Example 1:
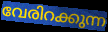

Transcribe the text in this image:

വേരിറക്കുന്ന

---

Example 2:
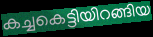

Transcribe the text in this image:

കച്ചകെട്ടിയിറങ്ങിയ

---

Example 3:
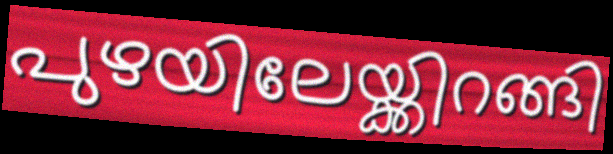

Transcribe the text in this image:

പുഴയിലേയ്ക്കിറങ്ങി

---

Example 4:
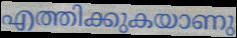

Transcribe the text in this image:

എത്തിക്കുകയാണു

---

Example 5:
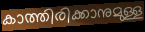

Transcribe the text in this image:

കാത്തിരിക്കാനുമുള്ള